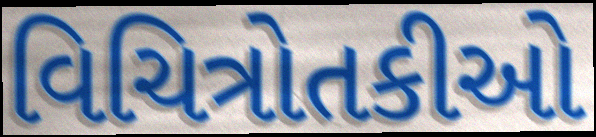
વિચિત્રોતકીઓ